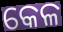
କେଳ